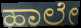
ಹಾಲೇ